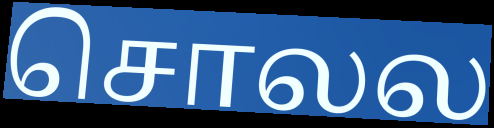
சொலல